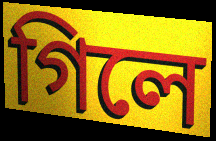
গিলে